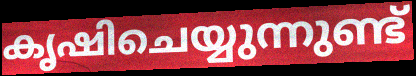
കൃഷിചെയ്യുന്നുണ്ട്